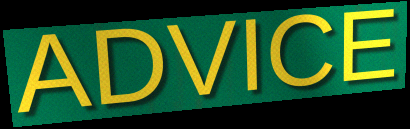
ADVICE